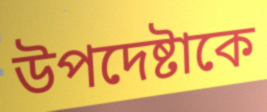
উপদেষ্টাকে